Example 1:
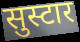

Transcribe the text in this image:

सुस्टार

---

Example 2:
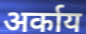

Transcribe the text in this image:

अर्काय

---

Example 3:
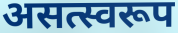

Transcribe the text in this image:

असत्स्वरूप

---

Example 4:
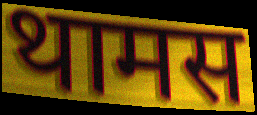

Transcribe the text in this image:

थामस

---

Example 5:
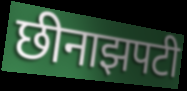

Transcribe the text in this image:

छीनाझपटी